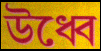
উধ্বে